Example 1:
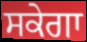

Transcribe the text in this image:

ਸਕੇਗਾ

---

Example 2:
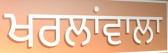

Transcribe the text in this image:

ਖਰਲਾਂਵਾਲਾ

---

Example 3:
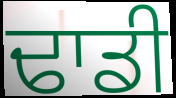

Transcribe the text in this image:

ਢਾਡੀ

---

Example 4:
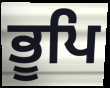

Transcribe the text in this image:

ਭੂਪਿ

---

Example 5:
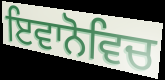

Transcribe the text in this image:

ਇਵਾਨੋਵਿਚ